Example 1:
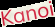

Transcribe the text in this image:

Kanoi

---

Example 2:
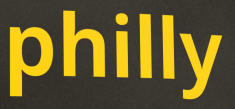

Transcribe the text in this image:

philly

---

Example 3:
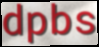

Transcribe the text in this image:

dpbs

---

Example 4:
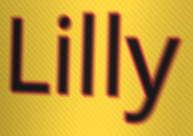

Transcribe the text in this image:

Lilly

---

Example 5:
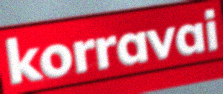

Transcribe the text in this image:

korravai